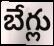
బేగ్లు